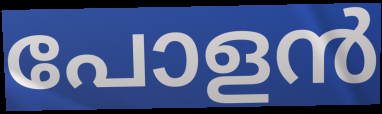
പോളൻ